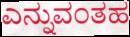
ಎನ್ನುವಂತಹ